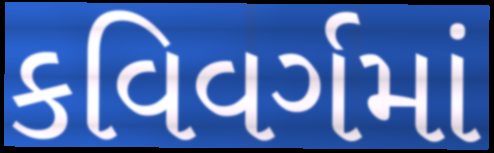
કવિવર્ગમાં